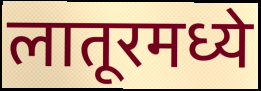
लातूरमध्ये